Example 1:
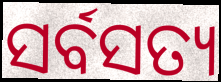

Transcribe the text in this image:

ସର୍ବସତ୍ୟ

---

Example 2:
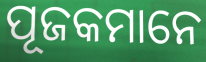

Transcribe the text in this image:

ପୂଜକମାନେ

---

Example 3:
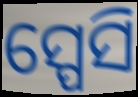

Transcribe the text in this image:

ସ୍ପେସି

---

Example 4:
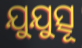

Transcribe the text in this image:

ଯୁଯୁତ୍ସୂ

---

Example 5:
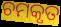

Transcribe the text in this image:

ଚମକୃତ